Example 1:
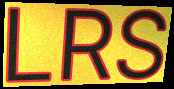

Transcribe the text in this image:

LRS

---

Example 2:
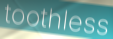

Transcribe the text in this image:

toothless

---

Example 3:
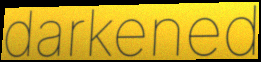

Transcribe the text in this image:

darkened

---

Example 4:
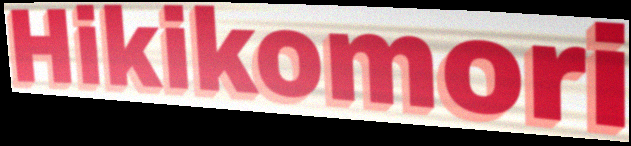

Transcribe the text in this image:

Hikikomori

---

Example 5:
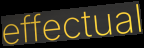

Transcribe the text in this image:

effectual